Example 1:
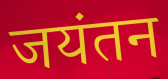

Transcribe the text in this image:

जयंतन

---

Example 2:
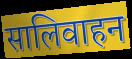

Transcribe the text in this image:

सालिवाहन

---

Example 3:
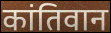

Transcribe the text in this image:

कांतिवान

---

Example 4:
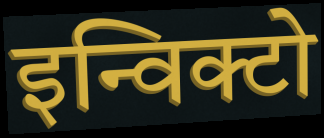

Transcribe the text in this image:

इन्विक्टो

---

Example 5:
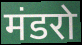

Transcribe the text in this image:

मंडरो